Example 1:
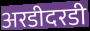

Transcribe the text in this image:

अरडीदरडी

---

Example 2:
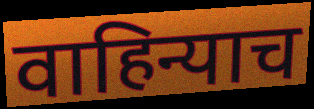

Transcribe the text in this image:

वाहिन्याच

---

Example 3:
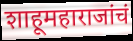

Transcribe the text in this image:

शाहूमहाराजांचं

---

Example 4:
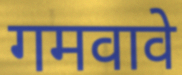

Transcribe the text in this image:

गमवावे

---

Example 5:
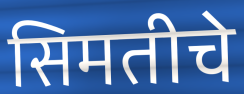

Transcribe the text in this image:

सिमतीचे